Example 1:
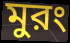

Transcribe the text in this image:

মুরং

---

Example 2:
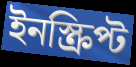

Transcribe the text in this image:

ইনস্ক্রিপ্ট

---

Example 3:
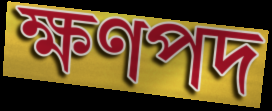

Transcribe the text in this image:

ক্ষণপদ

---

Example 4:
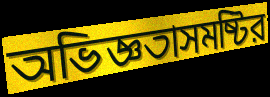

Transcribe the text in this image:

অভিজ্ঞতাসমষ্টির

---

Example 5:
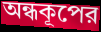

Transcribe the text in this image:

অন্ধকূপের